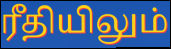
ரீதியிலும்